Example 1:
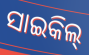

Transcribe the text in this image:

ସାଇକିଲ୍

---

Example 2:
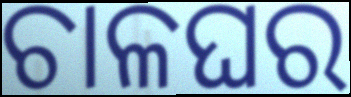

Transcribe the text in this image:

ଚାଳଘର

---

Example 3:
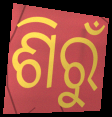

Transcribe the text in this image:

ଶିରୁଁ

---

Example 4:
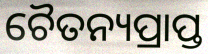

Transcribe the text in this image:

ଚୈତନ୍ୟପ୍ରାପ୍ତ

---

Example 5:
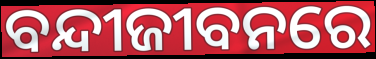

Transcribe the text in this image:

ବନ୍ଦୀଜୀବନରେ